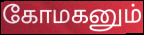
கோமகனும்